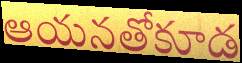
ఆయనతోకూడ